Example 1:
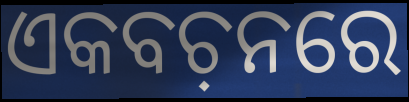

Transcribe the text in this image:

ଏକବଚ଼ନରେ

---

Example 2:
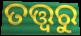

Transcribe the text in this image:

ତତ୍ତ୍ୱରୁ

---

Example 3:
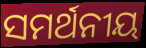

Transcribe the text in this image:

ସମର୍ଥନୀୟ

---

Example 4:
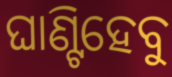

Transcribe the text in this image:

ଘାଣ୍ଟିହେବୁ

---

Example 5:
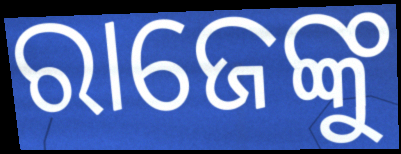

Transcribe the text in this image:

ରାଜେଙ୍କୁ